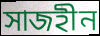
সাজহীন